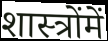
शास्त्रोंमें